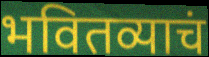
भवितव्याचं